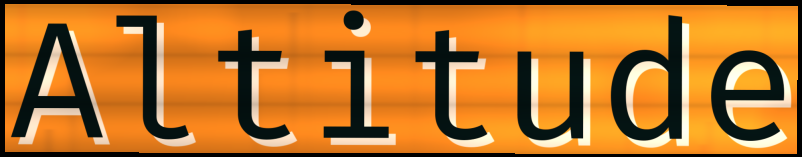
Altitude